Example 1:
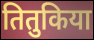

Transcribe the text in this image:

तितुकिया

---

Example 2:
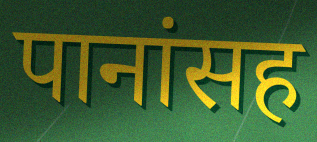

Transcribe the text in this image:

पानांसह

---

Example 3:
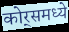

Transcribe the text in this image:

कोर्समध्ये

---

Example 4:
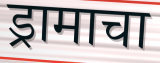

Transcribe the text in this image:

ड्रामाचा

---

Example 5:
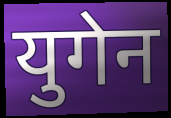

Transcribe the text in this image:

युगेन